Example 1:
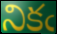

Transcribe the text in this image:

నికఁ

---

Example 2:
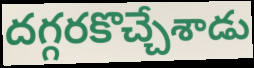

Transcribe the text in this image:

దగ్గరకొచ్చేశాడు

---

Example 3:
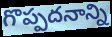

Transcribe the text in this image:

గొప్పదనాన్ని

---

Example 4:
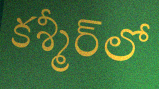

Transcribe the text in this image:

కశ్మీర్‌లో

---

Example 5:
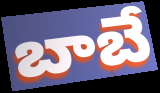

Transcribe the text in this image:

బాబే